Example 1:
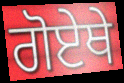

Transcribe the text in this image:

ਗੋਏਥੇ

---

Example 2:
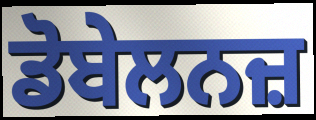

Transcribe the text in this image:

ਡੋਬੇਲਨਜ਼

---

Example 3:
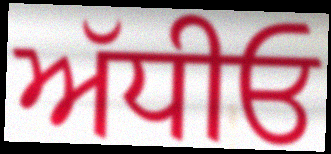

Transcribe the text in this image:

ਅੱਧੀਓ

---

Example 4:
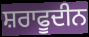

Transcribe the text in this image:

ਸ਼ਰਾਫੂਦੀਨ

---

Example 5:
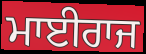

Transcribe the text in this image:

ਮਾਈਰਾਜ